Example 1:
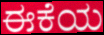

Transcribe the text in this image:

ಈಕೆಯ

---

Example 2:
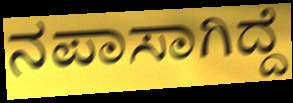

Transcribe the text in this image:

ನಪಾಸಾಗಿದ್ದೆ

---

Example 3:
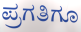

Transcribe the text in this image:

ಪ್ರಗತಿಗೂ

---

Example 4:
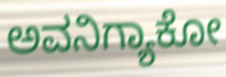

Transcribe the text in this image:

ಅವನಿಗ್ಯಾಕೋ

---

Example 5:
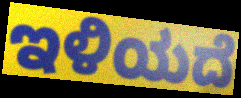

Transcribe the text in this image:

ಇಳಿಯದೆ